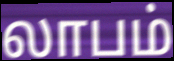
லாபம்